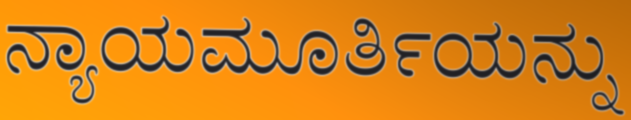
ನ್ಯಾಯಮೂರ್ತಿಯನ್ನು